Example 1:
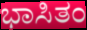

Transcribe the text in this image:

ಭಾಸಿತಂ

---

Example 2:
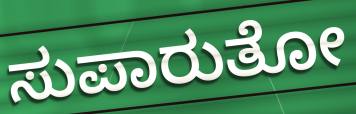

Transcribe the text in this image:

ಸುಪಾರುತೋ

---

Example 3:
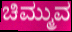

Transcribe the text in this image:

ಚಿಮ್ಮುವ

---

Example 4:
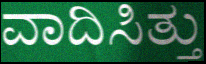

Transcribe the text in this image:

ವಾದಿಸಿತ್ತು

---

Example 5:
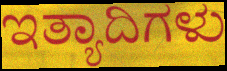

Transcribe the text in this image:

ಇತ್ಯಾದಿಗಳು